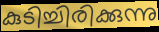
കുടിച്ചിരിക്കുന്നു